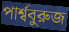
পার্শ্ববুরুজ